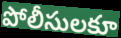
పోలీసులకూ